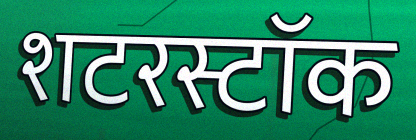
शटरस्‍टॉक